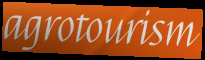
agrotourism